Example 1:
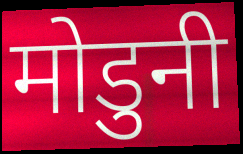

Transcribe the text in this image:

मोडुनी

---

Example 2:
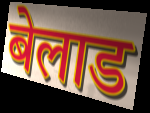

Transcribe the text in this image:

बेलाड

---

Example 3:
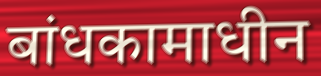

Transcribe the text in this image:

बांधकामाधीन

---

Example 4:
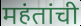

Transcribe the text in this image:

महंतांची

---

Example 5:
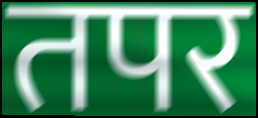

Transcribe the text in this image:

तपर